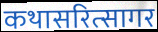
कथासरित्सागर